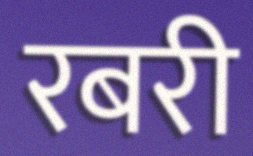
रबरी